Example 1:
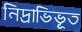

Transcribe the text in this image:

নিদ্রাভিভূত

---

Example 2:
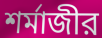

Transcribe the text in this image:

শর্মাজীর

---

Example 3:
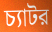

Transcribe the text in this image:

চ্যাটর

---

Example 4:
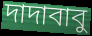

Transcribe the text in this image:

দাদাবাবু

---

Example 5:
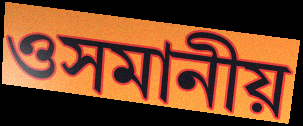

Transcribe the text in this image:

ওসমানীয়